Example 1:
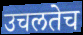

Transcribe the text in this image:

उचलतेच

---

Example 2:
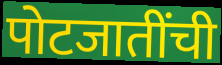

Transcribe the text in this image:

पोटजातींची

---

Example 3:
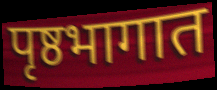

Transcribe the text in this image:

पृष्ठभागात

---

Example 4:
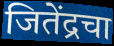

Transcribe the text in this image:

जितेंद्रचा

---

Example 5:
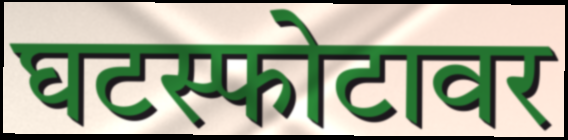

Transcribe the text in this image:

घटस्फोटावर